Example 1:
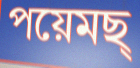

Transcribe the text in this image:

পয়েমছ্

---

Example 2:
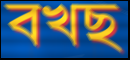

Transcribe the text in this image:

বখছ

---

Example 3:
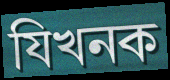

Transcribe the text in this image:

যিখনক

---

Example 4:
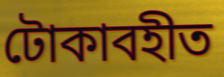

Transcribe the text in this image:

টোকাবহীত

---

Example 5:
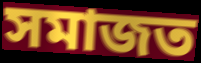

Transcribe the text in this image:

সমাজত